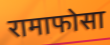
रामाफोसा